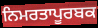
ਨਿਮਰਤਾਪੂਰਬਕ